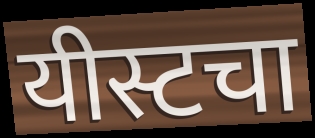
यीस्टचा